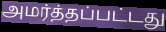
அமர்த்தப்பட்டது